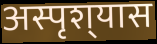
अस्पृश्यास